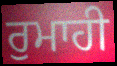
ਰੁਮਾਹੀ